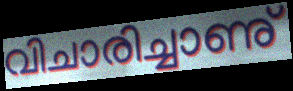
വിചാരിച്ചാണു്